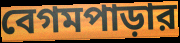
বেগমপাড়ার